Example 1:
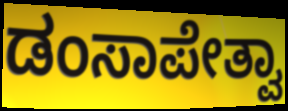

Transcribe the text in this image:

ಡಂಸಾಪೇತ್ವಾ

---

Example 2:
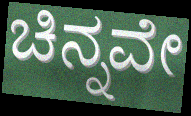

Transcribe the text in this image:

ಚಿನ್ನವೇ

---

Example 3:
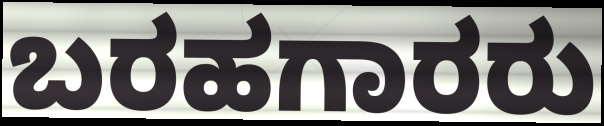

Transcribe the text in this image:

ಬರಹಗಾರರು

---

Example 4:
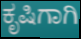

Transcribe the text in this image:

ಕೃಷಿಗಾಗಿ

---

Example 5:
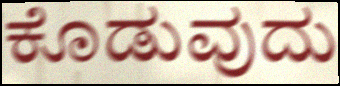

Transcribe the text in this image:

ಕೊಡುವುದು